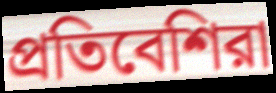
প্রতিবেশিরা